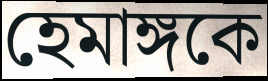
হেমাঙ্গকে